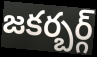
జకర్బర్గ్